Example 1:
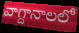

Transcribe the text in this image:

వాగ్దానాలలో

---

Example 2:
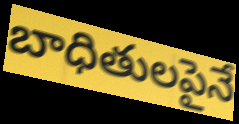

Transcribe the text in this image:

బాధితులపైనే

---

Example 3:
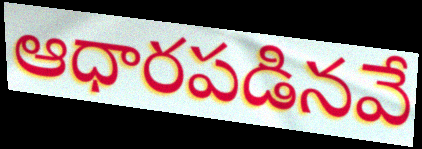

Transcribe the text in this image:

ఆధారపడినవే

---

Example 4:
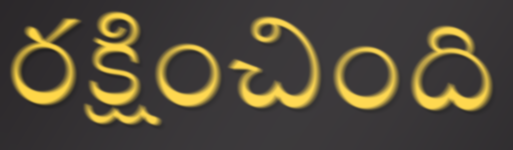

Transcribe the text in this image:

రక్షించింది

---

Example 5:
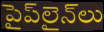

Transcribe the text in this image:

పైప్‌లైన్‌లు